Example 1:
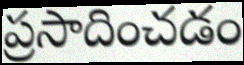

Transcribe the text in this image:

ప్రసాదించడం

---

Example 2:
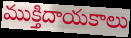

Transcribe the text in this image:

ముక్తిదాయకాలు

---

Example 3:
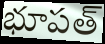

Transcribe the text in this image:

భూపత్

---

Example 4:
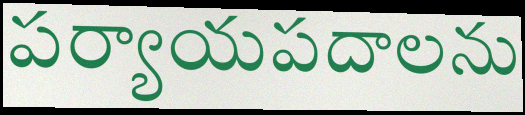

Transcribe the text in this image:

పర్యాయపదాలను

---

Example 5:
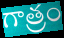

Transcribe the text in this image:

గాత్రం